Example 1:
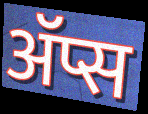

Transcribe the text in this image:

ॲप्स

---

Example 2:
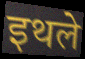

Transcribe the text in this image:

इथले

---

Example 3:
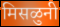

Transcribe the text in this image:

मिसळुनी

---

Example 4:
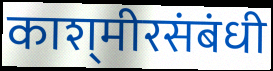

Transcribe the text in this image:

काश्मीरसंबंधी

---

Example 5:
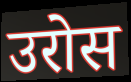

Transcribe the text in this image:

उरोस